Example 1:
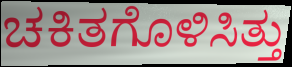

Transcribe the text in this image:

ಚಕಿತಗೊಳಿಸಿತ್ತು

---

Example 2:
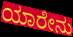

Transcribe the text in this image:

ಯಾರೇನು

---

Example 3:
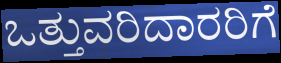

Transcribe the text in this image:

ಒತ್ತುವರಿದಾರರಿಗೆ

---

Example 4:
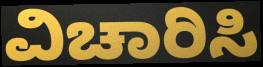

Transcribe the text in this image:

ವಿಚಾರಿಸಿ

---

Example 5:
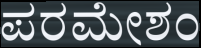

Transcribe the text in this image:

ಪರಮೇಶಂ